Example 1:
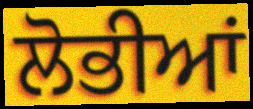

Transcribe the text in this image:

ਲੋਭੀਆਂ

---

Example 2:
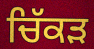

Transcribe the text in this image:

ਚਿੱਕੜ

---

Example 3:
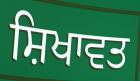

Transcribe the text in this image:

ਸ਼ਿਖਾਵਤ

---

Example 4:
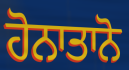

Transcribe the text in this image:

ਹੋਨਾਤਾਨੋ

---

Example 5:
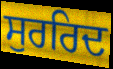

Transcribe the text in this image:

ਸੁਰਰਿਦ